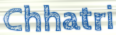
Chhatri